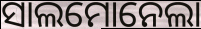
ସାଲମୋନେଲା